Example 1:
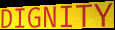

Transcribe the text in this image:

DIGNITY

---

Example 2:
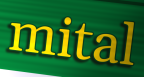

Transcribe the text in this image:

mital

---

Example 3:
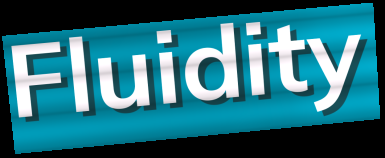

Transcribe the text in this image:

Fluidity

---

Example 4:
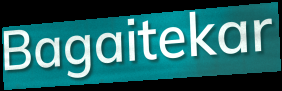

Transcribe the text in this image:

Bagaitekar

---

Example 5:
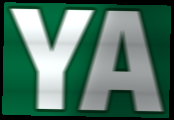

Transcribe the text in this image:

YA